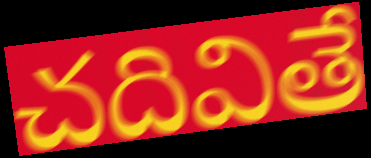
చదివితే